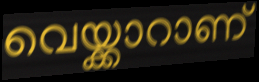
വെയ്ക്കാറാണ്